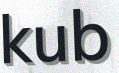
kub